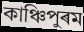
কাঞ্চিপুৰম